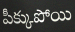
పీక్కుపోయి